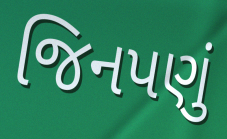
જિનપણું